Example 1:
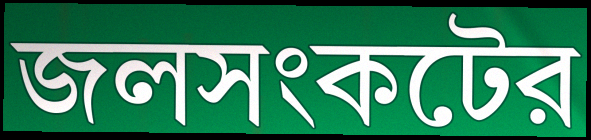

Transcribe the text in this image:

জলসংকটের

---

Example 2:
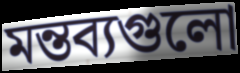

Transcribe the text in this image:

মন্তব্যগুলো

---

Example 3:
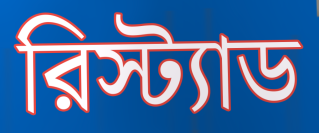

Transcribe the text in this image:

রিস্ট্যাড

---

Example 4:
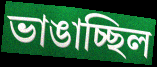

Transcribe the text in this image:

ভাঙাচ্ছিল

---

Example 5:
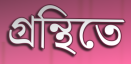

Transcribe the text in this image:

গ্রন্থিতে